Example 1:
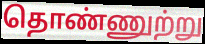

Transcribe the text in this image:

தொண்ணுற்று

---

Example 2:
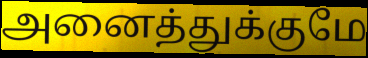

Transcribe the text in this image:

அனைத்துக்குமே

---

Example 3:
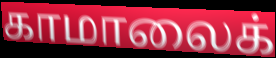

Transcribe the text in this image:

காமாலைக்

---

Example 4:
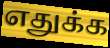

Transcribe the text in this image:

எதுக்க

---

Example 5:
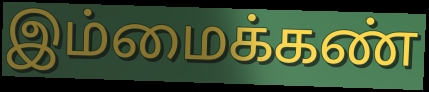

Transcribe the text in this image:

இம்மைக்கண்